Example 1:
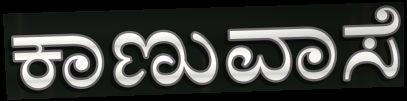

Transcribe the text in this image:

ಕಾಣುವಾಸೆ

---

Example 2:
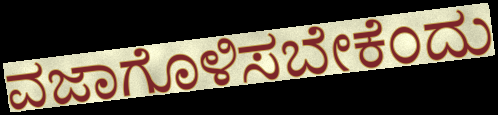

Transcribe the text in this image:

ವಜಾಗೊಳಿಸಬೇಕೆಂದು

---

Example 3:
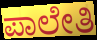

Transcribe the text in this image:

ಪಾಲೇತಿ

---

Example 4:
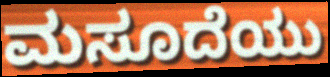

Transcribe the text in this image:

ಮಸೂದೆಯು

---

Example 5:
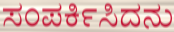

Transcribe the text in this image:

ಸಂಪರ್ಕಿಸಿದನು